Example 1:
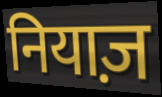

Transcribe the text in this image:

नियाज़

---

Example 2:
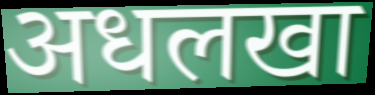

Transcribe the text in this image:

अधलखा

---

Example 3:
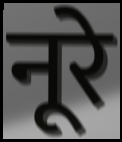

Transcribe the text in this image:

नूरे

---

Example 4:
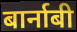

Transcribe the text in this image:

बार्नाबी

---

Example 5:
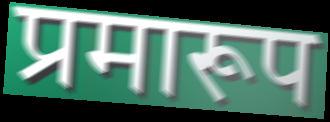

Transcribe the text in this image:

प्रमारूप